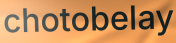
chotobelay